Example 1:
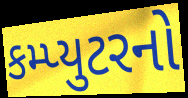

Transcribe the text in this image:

કમ્પ્યુટરનો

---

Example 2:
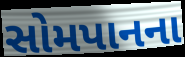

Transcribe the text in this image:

સોમપાનના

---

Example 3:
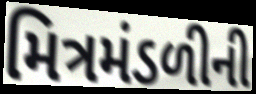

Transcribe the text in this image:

મિત્રમંડળીની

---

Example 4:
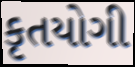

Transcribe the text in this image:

કૃતયોગી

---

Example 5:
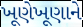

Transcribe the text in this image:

ખૂણેખૂણાને